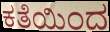
ಕತೆಯಿಂದ